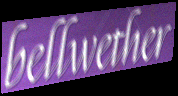
bellwether